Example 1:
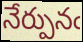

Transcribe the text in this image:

నేర్పునఁ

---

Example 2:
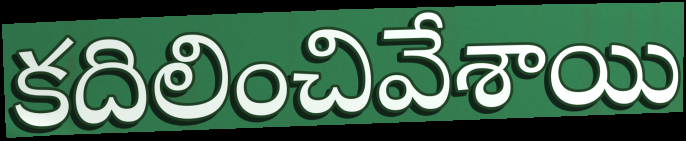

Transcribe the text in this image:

కదిలించివేశాయి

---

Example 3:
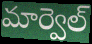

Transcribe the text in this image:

మార్వెల్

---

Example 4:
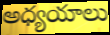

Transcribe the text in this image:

అధ్యయాలు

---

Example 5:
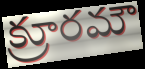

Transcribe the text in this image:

క్రూరమౌ